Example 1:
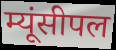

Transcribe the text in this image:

म्यूंसीपल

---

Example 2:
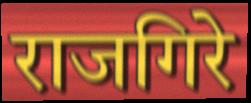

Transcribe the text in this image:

राजगिरे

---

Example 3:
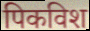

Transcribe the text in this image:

पिकविश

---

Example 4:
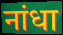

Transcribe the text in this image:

नांधा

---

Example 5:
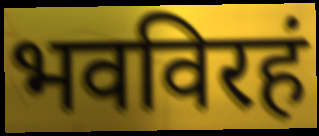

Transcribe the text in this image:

भवविरहं